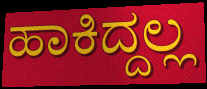
ಹಾಕಿದ್ದಲ್ಲ